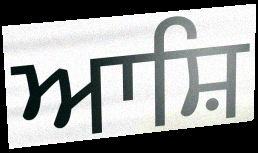
ਆਸ਼ਿ